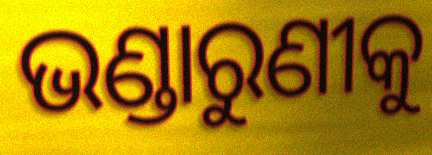
ଭଣ୍ଡାରୁଣୀକୁ